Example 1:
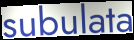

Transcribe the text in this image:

subulata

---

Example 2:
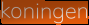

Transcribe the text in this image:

koningen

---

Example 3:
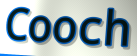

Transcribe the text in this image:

Cooch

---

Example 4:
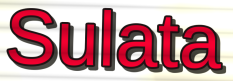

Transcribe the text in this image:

Sulata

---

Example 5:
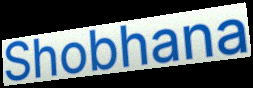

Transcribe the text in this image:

Shobhana